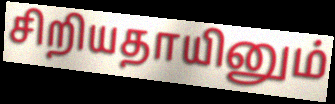
சிறியதாயினும்